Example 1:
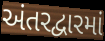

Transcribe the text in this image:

અંતરદ્વારમાં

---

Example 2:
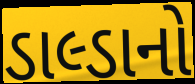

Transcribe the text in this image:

ડાલ્ડાનો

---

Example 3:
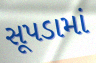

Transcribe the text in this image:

સૂપડામાં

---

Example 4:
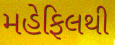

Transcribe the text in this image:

મહેફિલથી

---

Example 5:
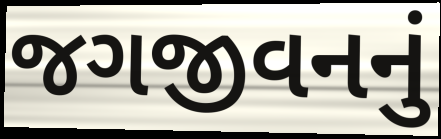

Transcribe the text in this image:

જગજીવનનું